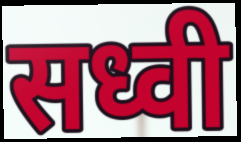
सध्वी